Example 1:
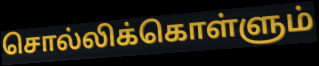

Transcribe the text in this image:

சொல்லிக்கொள்ளும்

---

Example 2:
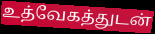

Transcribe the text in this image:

உத்வேகத்துடன்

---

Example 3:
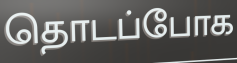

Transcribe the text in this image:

தொடப்போக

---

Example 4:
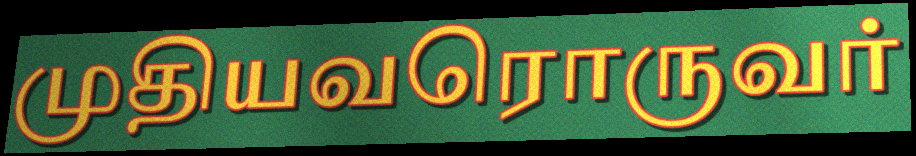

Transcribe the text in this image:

முதியவரொருவர்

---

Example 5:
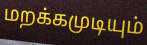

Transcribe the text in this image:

மறக்கமுடியும்